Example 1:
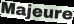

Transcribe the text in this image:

Majeure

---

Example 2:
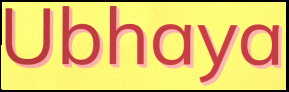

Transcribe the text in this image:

Ubhaya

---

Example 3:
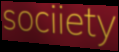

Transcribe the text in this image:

sociiety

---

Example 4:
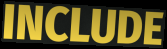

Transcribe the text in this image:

INCLUDE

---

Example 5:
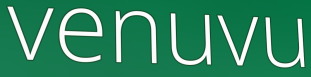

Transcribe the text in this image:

venuvu